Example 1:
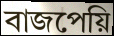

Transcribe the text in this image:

বাজপেয়ি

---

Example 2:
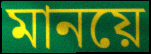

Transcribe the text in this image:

মানয়ে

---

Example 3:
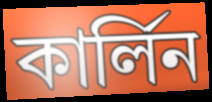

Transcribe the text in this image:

কার্লিন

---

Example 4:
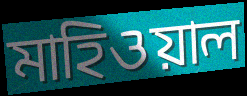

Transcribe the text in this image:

মাহিওয়াল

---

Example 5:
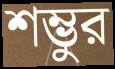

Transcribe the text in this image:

শম্ভুর